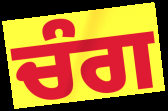
ਚੰਗ